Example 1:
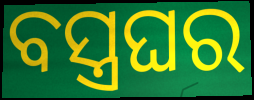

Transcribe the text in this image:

ବସ୍ତ୍ରଘର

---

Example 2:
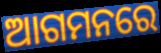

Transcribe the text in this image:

ଆଗମନରେ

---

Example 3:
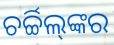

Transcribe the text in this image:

ଚର୍ଚ୍ଚିଲ୍‌ଙ୍କର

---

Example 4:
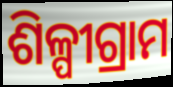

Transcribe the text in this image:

ଶିଳ୍ପୀଗ୍ରାମ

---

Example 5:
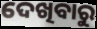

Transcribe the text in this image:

ଦେଖିବାରୁ